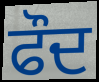
ਫੌਦ